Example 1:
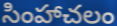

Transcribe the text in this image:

సింహాచలం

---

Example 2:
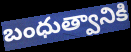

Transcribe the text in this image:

బంధుత్వానికి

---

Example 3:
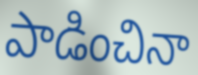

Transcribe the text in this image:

పాడించినా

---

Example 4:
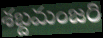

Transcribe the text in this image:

శబ్దమంజరి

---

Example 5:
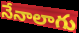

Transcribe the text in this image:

నేనాలాగు